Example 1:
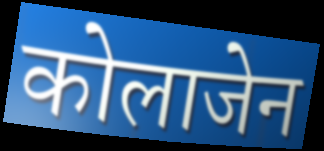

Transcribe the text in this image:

कोलाजेन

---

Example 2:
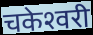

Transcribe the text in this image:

चकेश्वरी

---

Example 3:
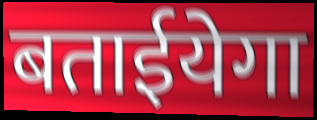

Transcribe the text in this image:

बताईयेगा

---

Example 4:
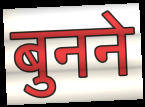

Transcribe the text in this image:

बुनने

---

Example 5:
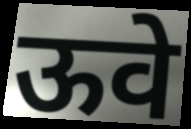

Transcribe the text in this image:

ऊवे